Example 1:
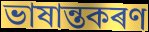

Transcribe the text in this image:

ভাষান্তকৰণ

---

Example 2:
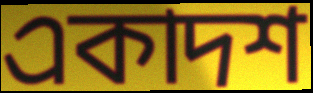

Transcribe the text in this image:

একাদশ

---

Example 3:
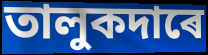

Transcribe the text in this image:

তালুকদাৰে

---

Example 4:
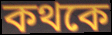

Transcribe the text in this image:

কথকে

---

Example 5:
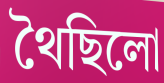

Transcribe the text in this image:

থৈছিলো